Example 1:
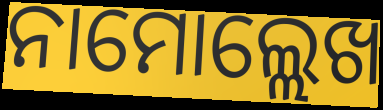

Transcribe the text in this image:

ନାମୋଲ୍ଲେଖ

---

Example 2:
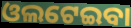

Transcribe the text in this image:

ଓଲଟେଇବା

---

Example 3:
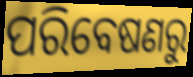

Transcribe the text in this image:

ପରିବେଷଣରୁ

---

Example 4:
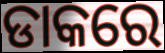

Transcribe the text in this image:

ଡାକରେ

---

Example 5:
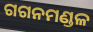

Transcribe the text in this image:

ଗଗନମଣ୍ଡଳ